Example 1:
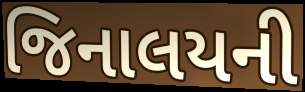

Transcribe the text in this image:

જિનાલયની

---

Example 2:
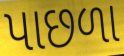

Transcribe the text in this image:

પાછળા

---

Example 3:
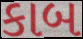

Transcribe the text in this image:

કાબ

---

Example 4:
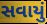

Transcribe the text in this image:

સવાયું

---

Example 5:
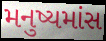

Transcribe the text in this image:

મનુષ્યમાંસ